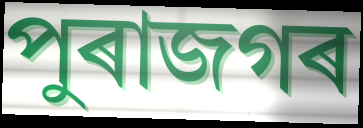
পুৰাজগৰ